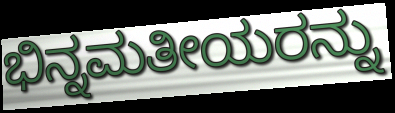
ಭಿನ್ನಮತೀಯರನ್ನು